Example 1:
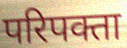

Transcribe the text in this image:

परिपक्ता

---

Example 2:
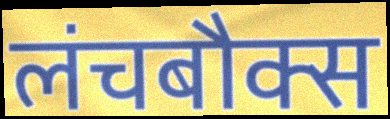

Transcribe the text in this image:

लंचबौक्स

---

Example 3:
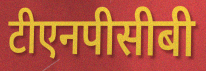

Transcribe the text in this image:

टीएनपीसीबी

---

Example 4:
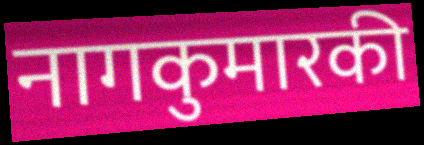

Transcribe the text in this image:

नागकुमारकी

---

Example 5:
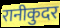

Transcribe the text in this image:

रानीकुदर